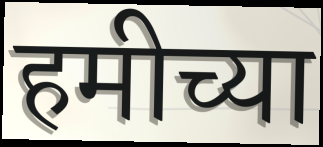
हमीच्या